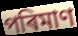
পৰিমাণ